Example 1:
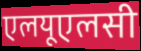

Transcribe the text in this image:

एलयूएलसी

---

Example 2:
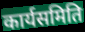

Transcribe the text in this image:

कार्यसमिति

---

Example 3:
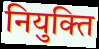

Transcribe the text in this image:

नियुक्‍ति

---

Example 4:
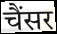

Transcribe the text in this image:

चैंसर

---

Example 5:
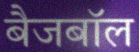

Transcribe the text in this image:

बैजबॉल